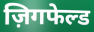
ज़िगफेल्ड